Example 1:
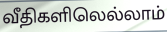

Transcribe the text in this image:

வீதிகளிலெல்லாம்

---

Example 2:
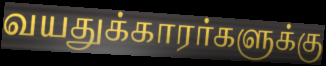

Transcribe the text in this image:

வயதுக்காரர்களுக்கு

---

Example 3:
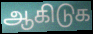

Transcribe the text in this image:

ஆகிடுக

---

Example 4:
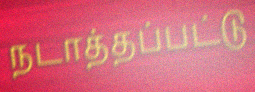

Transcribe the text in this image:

நடாத்தப்பட்டு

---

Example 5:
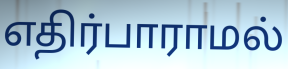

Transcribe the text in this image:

எதிர்பாராமல்